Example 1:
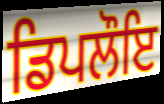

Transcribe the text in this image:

ਡਿਪਲੌਇ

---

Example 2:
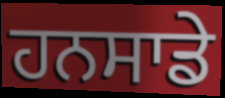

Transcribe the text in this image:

ਹਨਸਾਡੇ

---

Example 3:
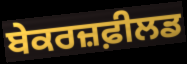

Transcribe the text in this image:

ਬੇਕਰਜ਼ਫ਼ੀਲਡ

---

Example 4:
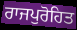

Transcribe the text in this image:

ਰਾਜਪੁਰੋਹਿਤ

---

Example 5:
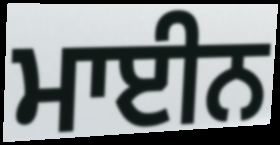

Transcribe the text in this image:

ਮਾਈਨ